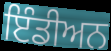
ਇੰਡੀਅਨ